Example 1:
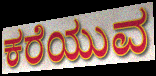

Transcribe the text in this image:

ಕರೆಯುವ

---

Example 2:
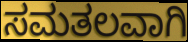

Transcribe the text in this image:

ಸಮತಲವಾಗಿ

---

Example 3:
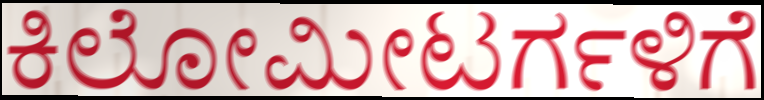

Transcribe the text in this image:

ಕಿಲೋಮೀಟರ್ಗಳಿಗೆ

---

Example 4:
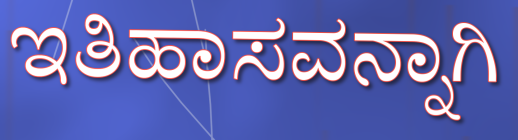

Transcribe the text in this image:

ಇತಿಹಾಸವನ್ನಾಗಿ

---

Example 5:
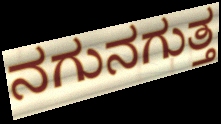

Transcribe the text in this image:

ನಗುನಗುತ್ತ